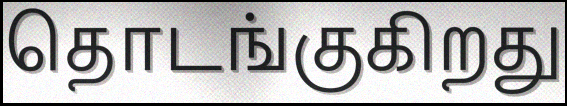
தொடங்குகிறது